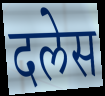
दलेस